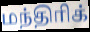
மந்திரிக்